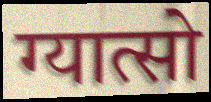
ग्यात्सो